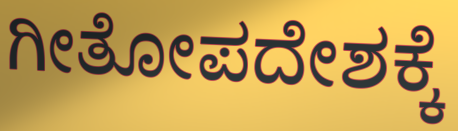
ಗೀತೋಪದೇಶಕ್ಕೆ